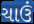
ચાઉં